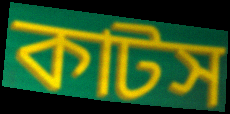
কাটস